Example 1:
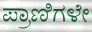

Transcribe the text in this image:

ಪ್ರಾಣಿಗಳೇ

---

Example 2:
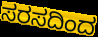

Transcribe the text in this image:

ಸರಸದಿಂದ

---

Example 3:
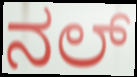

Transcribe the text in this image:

ನಲ್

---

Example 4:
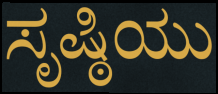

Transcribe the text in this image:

ಸೃಷ್ಠಿಯು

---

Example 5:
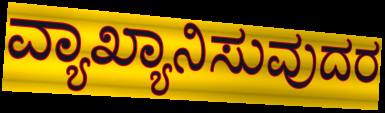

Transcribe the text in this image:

ವ್ಯಾಖ್ಯಾನಿಸುವುದರ